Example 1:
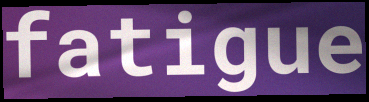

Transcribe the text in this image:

fatigue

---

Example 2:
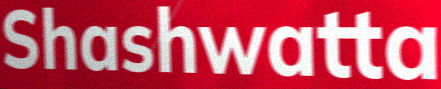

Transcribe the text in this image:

Shashwatta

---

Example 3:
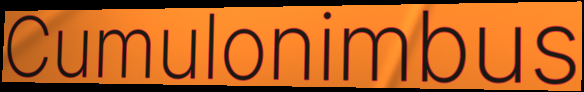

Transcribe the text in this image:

Cumulonimbus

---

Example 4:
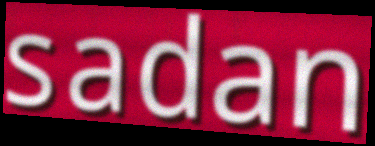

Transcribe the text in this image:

sadan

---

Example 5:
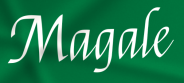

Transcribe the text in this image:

Magale